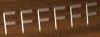
FFFFFF